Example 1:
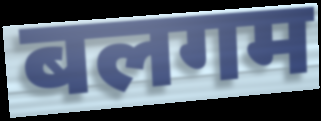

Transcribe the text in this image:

बलगम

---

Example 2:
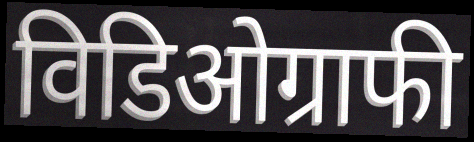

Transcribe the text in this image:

विडिओग्राफी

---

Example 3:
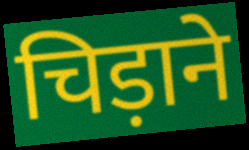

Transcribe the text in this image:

चिड़ाने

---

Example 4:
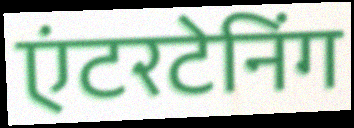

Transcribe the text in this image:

एंटरटेनिंग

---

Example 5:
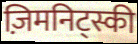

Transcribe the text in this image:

ज़िमनिट्स्की